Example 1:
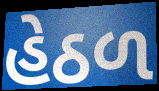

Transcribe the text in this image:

હેઠળ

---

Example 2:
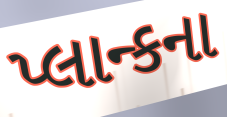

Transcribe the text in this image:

પ્લાન્કના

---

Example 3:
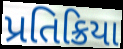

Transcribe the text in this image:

પ્રતિક્રિયા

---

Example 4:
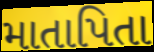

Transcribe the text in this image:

માતાપિતા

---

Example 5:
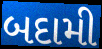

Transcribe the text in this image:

બદામી